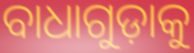
ବାଧାଗୁଡ଼ାକୁ